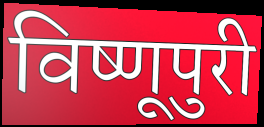
विष्णूपुरी